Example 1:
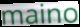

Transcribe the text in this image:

maino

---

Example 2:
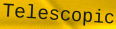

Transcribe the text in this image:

Telescopic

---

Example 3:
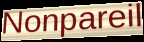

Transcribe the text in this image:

Nonpareil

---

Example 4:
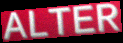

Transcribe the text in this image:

ALTER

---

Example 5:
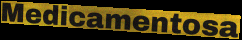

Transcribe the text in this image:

Medicamentosa